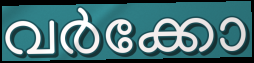
വർക്കോ